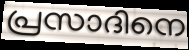
പ്രസാദിനെ